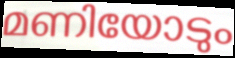
മണിയോടും